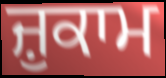
ਜ਼ੁਕਾਮ